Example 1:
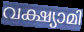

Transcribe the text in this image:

വക്ഷ്യാമി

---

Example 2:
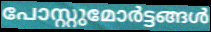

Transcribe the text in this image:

പോസ്റ്റുമോർട്ടങ്ങൾ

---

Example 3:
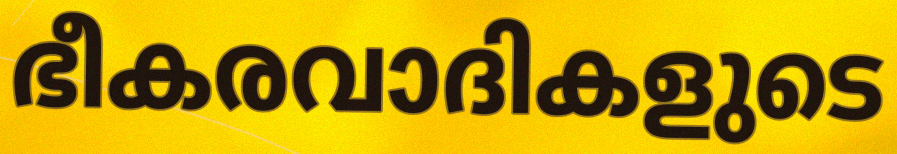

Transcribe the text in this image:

ഭീകരവാദികളുടെ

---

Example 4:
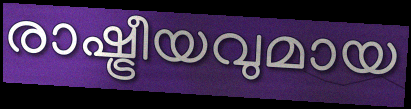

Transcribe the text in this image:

രാഷ്ട്രീയവുമായ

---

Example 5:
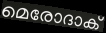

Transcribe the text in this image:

മെരോദാക്